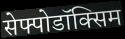
सेफ्पोडॉक्सिम